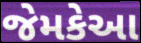
જેમકેઆ